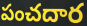
పంచదార